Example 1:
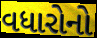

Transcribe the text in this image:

વધારોનો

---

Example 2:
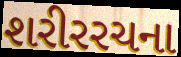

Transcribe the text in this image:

શરીરરચના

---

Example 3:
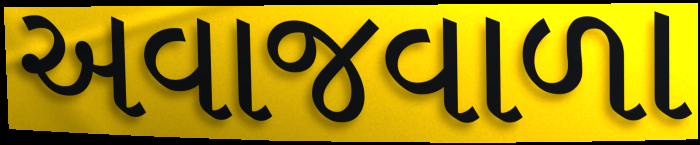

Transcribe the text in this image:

અવાજવાળા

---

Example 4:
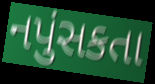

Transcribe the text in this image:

નપુંસકતા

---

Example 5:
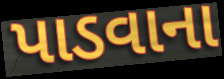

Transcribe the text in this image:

પાડવાના